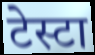
टेस्टा